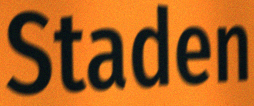
Staden